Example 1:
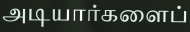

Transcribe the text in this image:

அடியார்களைப்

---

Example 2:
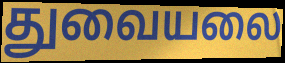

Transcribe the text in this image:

துவையலை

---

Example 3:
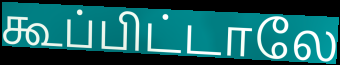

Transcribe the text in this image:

கூப்பிட்டாலே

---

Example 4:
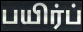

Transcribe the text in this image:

பயிர்ப்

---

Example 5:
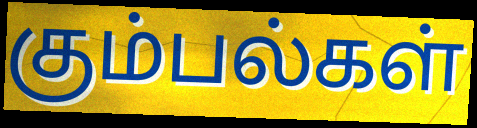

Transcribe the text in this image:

கும்பல்கள்